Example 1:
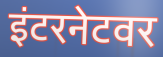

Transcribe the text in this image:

इंटरनेटवर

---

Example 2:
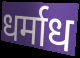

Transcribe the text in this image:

धर्माध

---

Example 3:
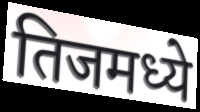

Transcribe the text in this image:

तिजमध्ये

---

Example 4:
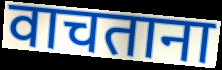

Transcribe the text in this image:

वाचताना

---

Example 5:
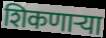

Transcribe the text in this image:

शिकणार्‍या